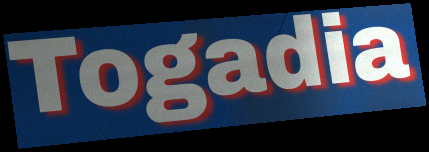
Togadia